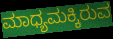
ಮಾಧ್ಯಮಕ್ಕಿರುವ